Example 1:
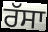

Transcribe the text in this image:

ਰੱਸਾ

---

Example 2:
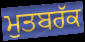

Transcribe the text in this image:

ਮੁਤਬਰੱਕ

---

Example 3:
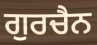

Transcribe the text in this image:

ਗੁਰਚੈਨ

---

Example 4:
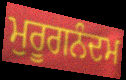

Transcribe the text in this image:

ਮੁਰੂਗਨੰਦਮ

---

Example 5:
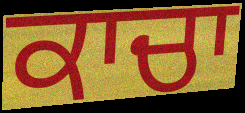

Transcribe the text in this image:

ਕਾਚਾ